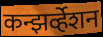
कन्झर्व्हेशन